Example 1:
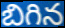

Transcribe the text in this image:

బిగిన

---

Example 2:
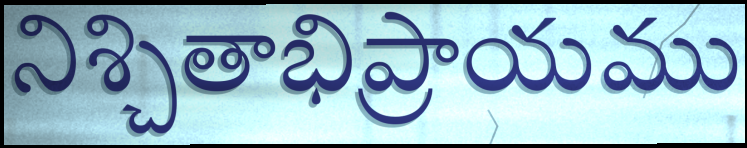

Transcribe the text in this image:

నిశ్చితాభిప్రాయము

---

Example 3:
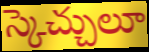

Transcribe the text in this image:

స్కెచ్చులూ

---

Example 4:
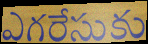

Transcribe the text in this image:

ఎగరేసుకు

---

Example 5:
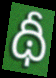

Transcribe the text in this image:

థీ